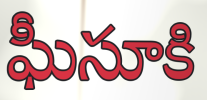
ఘీసూకి